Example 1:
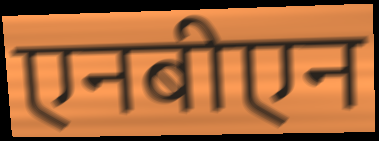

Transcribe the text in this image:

एनबीएन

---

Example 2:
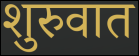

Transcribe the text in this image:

शुरुवात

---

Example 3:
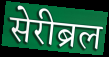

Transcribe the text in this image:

सेरीब्रल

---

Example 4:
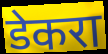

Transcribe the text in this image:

डेकरा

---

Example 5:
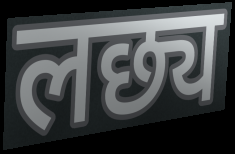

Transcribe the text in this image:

लछ्य